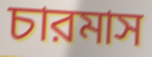
চারমাস